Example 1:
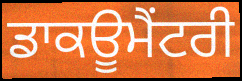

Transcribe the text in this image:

ਡਾਕਊਮੈਂਟਰੀ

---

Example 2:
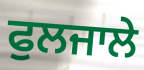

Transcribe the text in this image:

ਫੁਲਜਾਲੇ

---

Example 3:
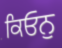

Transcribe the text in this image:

ਕਿਓਨੁ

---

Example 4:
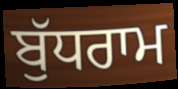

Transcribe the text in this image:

ਬੁੱਧਰਾਮ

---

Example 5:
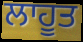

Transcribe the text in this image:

ਲਾਹੂਤ